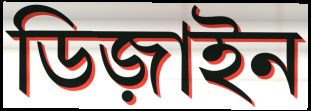
ডিজ়াইন